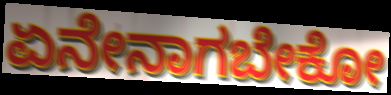
ಏನೇನಾಗಬೇಕೋ